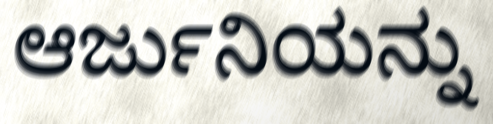
ಆರ್ಜುನಿಯನ್ನು